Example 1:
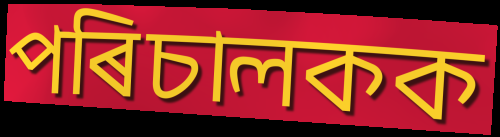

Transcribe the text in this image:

পৰিচালকক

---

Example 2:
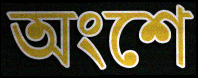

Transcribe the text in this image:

অংশে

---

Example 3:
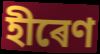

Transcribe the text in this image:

হীৰেণ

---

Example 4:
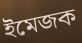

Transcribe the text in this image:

ইমেজক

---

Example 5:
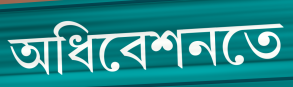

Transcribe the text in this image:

অধিবেশনতে